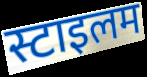
स्टाइलम